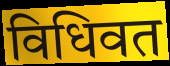
विधिवत